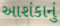
આશંકાનું